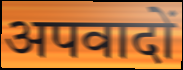
अपवादों